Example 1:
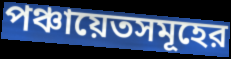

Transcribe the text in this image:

পঞ্চায়েতসমূহের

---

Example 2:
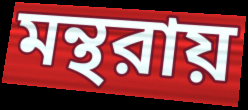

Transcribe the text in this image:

মন্থরায়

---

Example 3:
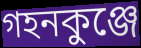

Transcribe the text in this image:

গহনকুঞ্জে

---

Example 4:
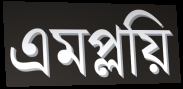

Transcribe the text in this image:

এমপ্লয়ি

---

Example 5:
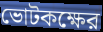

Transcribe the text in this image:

ভোটকক্ষের